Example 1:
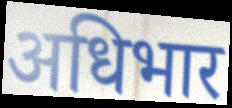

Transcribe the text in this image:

अधिभार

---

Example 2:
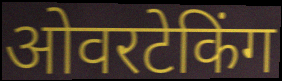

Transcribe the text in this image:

ओवरटेकिंग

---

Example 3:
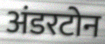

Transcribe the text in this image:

अंडरटोन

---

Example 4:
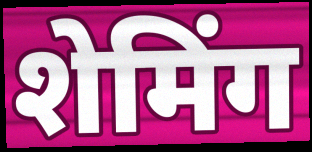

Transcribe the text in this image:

शेमिंग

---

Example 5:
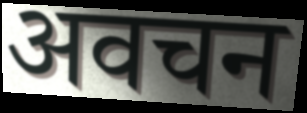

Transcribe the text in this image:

अवचन